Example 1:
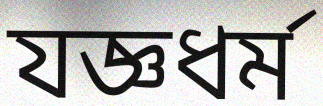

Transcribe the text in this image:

যজ্ঞধর্ম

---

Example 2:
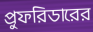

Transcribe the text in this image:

প্রুফরিডারের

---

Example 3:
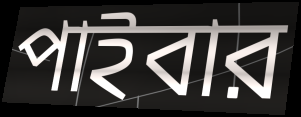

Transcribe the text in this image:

পাইবার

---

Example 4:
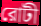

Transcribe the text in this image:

রোটী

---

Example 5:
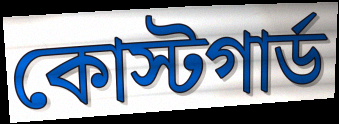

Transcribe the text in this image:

কোস্টগার্ড